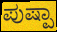
ಪುಷ್ಪಾ